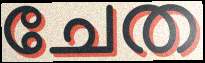
ചേത